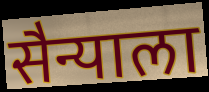
सैन्याला